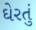
ઘેરતું